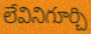
లేవినిగూర్చి